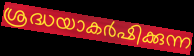
ശ്രദ്ധയാകർഷിക്കുന്ന